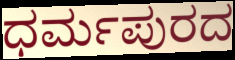
ಧರ್ಮಪುರದ